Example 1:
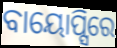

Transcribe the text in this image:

ବାୟୋପ୍ସିରେ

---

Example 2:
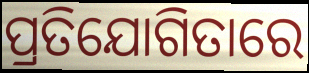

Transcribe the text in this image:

ପ୍ରତିଯୋଗିତାରେ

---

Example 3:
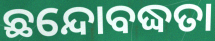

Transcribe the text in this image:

ଛନ୍ଦୋବଦ୍ଧତା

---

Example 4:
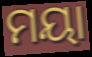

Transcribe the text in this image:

ମୟା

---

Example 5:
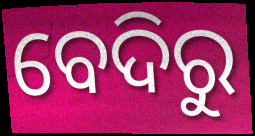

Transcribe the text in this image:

ବେଦିରୁ